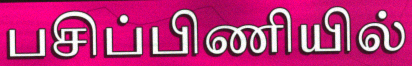
பசிப்பிணியில்